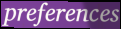
preferences